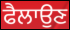
ਫੈਲਾਉਣ